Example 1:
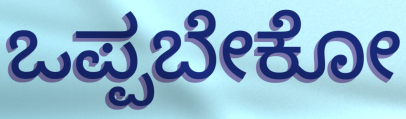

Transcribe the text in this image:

ಒಪ್ಪಬೇಕೋ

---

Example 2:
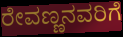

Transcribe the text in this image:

ರೇವಣ್ಣನವರಿಗೆ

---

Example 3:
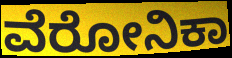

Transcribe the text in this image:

ವೆರೋನಿಕಾ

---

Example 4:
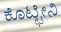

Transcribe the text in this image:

ಕೊಟ್ಟೇನಿ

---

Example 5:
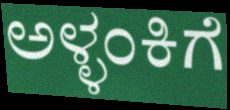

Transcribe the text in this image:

ಅಳ್ಳಂಕಿಗೆ